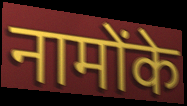
नामोंके